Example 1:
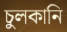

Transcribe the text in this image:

চুলকানি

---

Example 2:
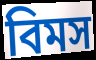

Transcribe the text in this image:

বিমস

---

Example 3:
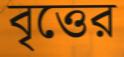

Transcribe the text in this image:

বৃত্তের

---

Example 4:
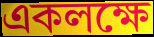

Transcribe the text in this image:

একলক্ষে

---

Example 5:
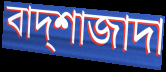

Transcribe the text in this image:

বাদ্শাজাদা